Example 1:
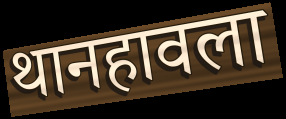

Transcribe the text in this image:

थानहावला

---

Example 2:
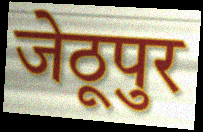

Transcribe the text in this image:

जेठूपुर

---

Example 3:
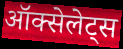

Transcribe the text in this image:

ऑक्सेलेट्स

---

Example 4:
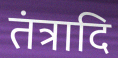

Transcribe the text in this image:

तंत्रादि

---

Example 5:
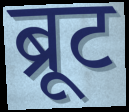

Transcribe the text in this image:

ब्रूट